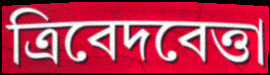
ত্রিবেদবেত্তা